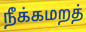
நீக்கமறத்